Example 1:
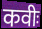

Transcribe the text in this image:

कवीः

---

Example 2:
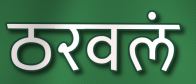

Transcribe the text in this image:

ठरवलं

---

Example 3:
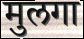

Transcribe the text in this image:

मुलगा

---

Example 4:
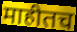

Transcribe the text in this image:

माहीतच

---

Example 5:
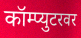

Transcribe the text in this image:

कॉम्प्युटरवर